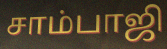
சாம்பாஜி